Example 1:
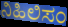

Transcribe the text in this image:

ನಿಹಿಲಿಸಂ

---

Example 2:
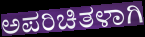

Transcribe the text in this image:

ಅಪರಿಚಿತಳಾಗಿ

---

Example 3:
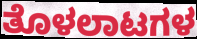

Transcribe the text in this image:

ತೊಳಲಾಟಗಳ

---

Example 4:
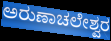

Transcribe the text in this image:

ಅರುಣಾಚಲೇಶ್ವರ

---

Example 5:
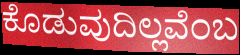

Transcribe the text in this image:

ಕೊಡುವುದಿಲ್ಲವೆಂಬ